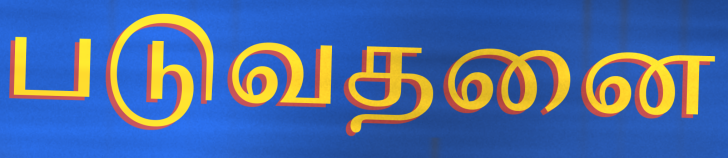
படுவதனை